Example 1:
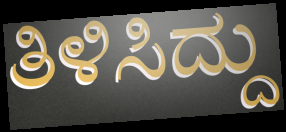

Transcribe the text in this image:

ತಿಳಿಸಿದ್ದು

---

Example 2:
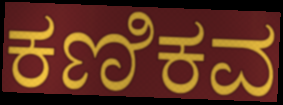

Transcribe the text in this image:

ಕಣಿಕವ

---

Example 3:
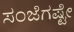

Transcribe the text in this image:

ಸಂಜೆಗಷ್ಟೇ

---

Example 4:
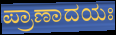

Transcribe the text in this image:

ಪ್ರಾಣಾದಯಃ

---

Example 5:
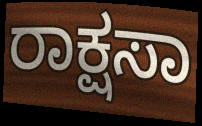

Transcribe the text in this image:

ರಾಕ್ಷಸಾ